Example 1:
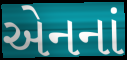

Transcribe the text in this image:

એનનાં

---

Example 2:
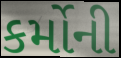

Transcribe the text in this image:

કર્મોની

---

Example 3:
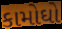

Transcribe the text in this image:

કામોઘો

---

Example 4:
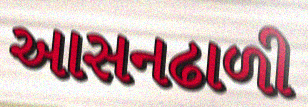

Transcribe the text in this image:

આસનઢાળી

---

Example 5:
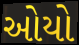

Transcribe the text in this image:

ઓયો